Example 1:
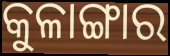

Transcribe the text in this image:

କୁଳାଙ୍ଗାର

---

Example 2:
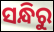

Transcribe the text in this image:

ସନ୍ଧିରୁ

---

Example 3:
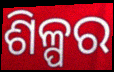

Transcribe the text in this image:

ଶିଳ୍ପର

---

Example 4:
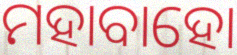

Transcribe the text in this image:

ମହାବାହୋ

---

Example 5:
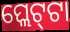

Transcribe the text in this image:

ପ୍ଲେଟ୍‍ଟା